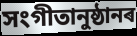
সংগীতানুষ্ঠানৰ